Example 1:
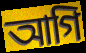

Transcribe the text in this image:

আগি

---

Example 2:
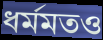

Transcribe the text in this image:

ধর্মমতও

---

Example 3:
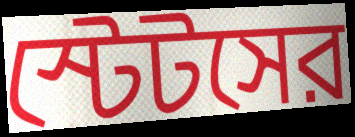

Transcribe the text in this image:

স্টেটসের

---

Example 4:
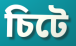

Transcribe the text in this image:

চিটে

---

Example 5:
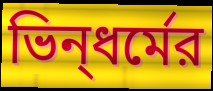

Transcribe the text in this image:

ভিন্‌ধর্মের